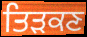
ਤਿੜਕਣ